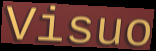
Visuo